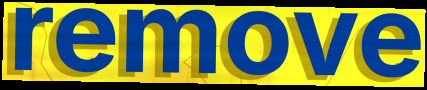
remove